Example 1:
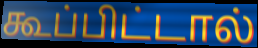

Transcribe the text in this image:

கூப்பிட்டால்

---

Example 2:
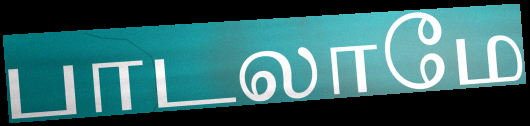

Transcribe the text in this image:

பாடலாமே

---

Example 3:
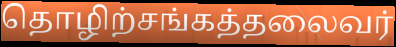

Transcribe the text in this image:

தொழிற்சங்கத்தலைவர்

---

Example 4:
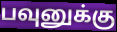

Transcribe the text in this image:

பவுனுக்கு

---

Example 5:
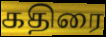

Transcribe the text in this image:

கதிரை